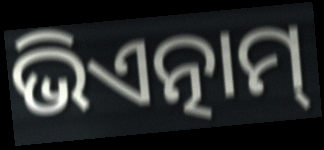
ଭିଏତ୍ନାମ୍